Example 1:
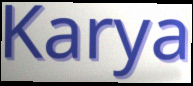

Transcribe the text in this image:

Karya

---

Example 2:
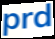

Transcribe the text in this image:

prd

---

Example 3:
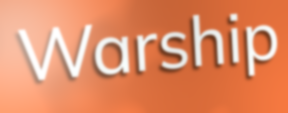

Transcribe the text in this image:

Warship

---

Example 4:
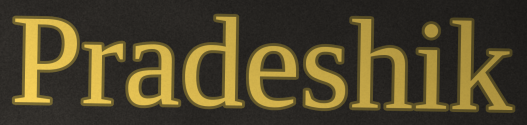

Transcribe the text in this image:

Pradeshik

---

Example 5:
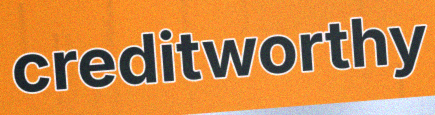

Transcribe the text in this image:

creditworthy